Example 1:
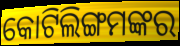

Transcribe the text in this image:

କୋଟିଲିଙ୍ଗମଙ୍କର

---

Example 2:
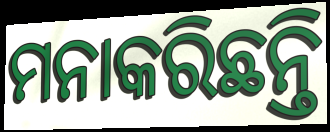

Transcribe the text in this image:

ମନାକରିଛନ୍ତି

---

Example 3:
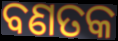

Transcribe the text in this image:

ବଣତକ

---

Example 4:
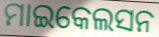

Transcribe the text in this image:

ମାଇକେଲସନ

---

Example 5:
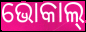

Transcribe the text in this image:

ଭୋକାଲ୍